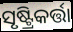
ସୃଷ୍ଟ୍ରିକର୍ତ୍ତା